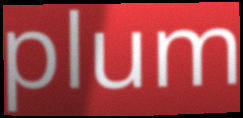
plum